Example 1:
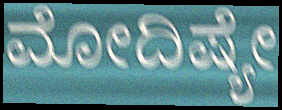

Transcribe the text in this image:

ಮೋದಿಷ್ಯೇ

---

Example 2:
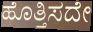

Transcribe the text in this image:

ಹೊತ್ತಿಸದೇ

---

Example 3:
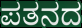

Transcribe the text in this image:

ಪತನದ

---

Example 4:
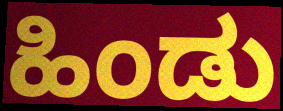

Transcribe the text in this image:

ಹಿಂಡು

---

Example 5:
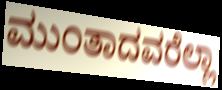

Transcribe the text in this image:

ಮುಂತಾದವರೆಲ್ಲಾ